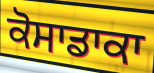
ਕੋਸਾਡਾਕਾ